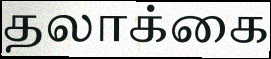
தலாக்கை